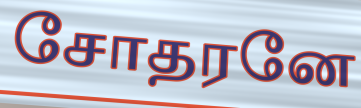
சோதரனே